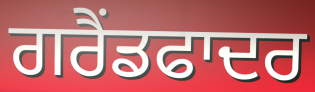
ਗਰੈਂਡਫਾਦਰ